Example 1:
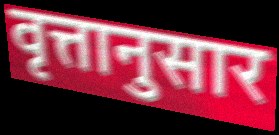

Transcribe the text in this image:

वृत्तानुसार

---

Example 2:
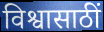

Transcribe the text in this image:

विश्वासाठीं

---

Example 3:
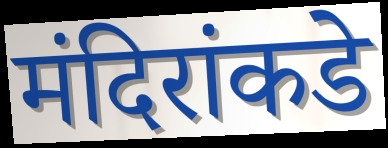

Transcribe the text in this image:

मंदिरांकडे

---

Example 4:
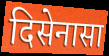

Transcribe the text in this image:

दिसेनासा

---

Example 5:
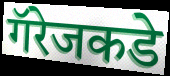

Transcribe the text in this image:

गॅरेजकडे